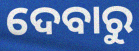
ଦେବାରୁ